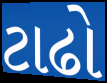
ટાઢો